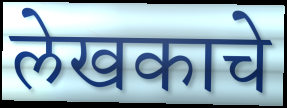
लेखकाचे